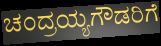
ಚಂದ್ರಯ್ಯಗೌಡರಿಗೆ